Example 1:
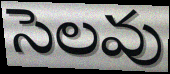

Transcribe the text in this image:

సెలవు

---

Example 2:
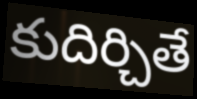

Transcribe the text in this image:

కుదిర్చితే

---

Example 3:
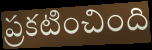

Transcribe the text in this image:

ప్రకటించింది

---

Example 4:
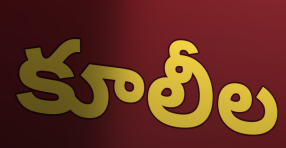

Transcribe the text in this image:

కూలీల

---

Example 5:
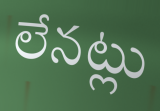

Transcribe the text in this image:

లేనట్లు